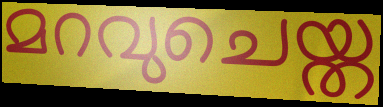
മറവുചെയ്ത